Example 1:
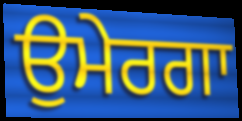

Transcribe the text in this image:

ਉਮੇਰਗਾ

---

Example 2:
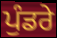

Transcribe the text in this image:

ਪੁੰਡਰੇ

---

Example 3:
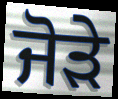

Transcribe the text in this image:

ਜੋਡ਼ੇ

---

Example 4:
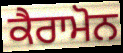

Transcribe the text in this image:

ਕੈਰਾਮੋਨ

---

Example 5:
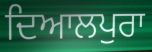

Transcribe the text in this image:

ਦਿਆਲਪੁਰਾ